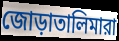
জোড়াতালিমারা